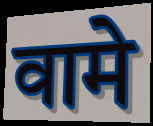
वामे